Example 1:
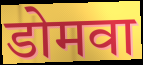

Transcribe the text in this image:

डोमवा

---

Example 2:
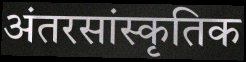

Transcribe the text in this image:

अंतरसांस्कृतिक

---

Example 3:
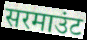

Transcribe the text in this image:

सरमाउंट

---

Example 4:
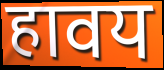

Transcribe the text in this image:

हावय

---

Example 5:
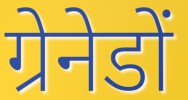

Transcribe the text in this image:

ग्रेनेडों